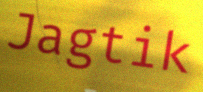
Jagtik